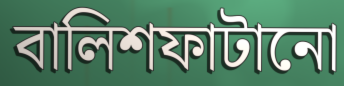
বালিশফাটানো